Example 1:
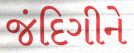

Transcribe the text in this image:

જંદિગીને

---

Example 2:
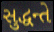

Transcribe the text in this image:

સુદ્ધન્તે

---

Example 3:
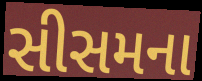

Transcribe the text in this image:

સીસમના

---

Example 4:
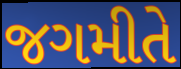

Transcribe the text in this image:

જગમીતે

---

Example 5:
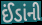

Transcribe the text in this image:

ઈંડાંની